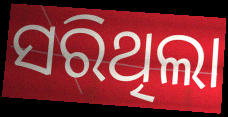
ସରିଥିଲା